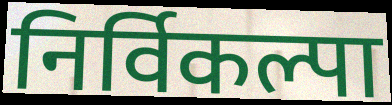
निर्विकल्पा